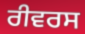
ਰੀਵਰਸ